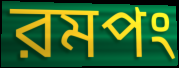
রমপং